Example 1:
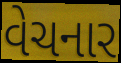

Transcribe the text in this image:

વેચનાર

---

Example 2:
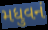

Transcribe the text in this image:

મધુવનં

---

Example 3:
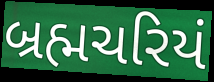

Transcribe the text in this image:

બ્રહ્મચરિયં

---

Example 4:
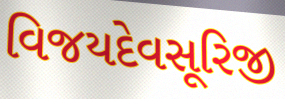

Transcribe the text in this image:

વિજયદેવસૂરિજી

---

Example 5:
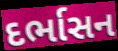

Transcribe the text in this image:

દર્ભાસન